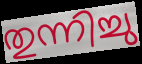
തുന്നിച്ചു